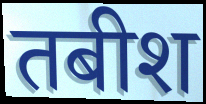
तबीश